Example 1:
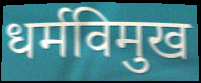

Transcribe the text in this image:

धर्मविमुख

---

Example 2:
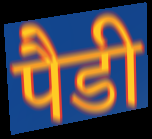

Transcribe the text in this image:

पैडी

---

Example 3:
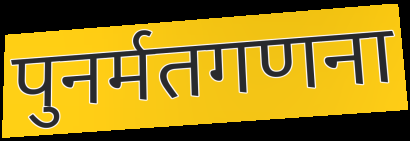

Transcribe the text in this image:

पुनर्मतगणना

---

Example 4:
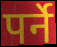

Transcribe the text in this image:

पर्ने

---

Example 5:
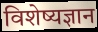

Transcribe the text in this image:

विशेष्यज्ञान